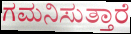
ಗಮನಿಸುತ್ತಾರೆ